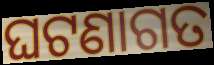
ଘଟଣାଗତ